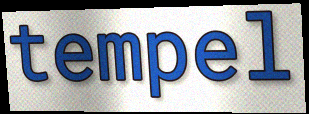
tempel